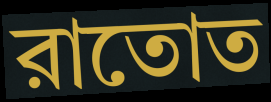
রাতোত